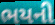
ભયની